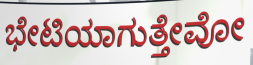
ಭೇಟಿಯಾಗುತ್ತೇವೋ